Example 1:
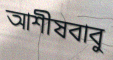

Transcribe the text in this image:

আশীষবাবু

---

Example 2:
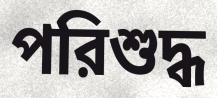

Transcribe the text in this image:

পরিশুদ্ধ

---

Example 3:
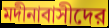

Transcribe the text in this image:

মদীনাবাসীদের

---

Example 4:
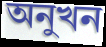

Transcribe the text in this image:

অনুখন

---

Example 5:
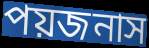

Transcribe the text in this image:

পয়জনাস